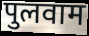
पुलवाम